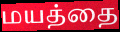
மயத்தை